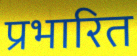
प्रभारित